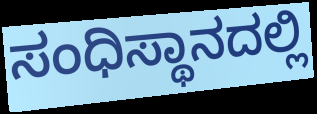
ಸಂಧಿಸ್ಥಾನದಲ್ಲಿ